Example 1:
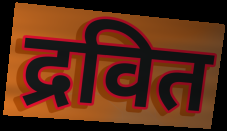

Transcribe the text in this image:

द्रवित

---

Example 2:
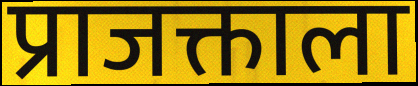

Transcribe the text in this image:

प्राजक्ताला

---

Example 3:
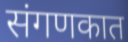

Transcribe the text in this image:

संगणकात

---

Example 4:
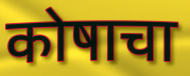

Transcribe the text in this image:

कोषाचा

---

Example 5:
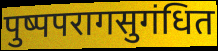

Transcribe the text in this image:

पुष्पपरागसुगंधित